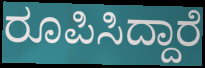
ರೂಪಿಸಿದ್ದಾರೆ